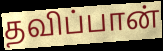
தவிப்பான்